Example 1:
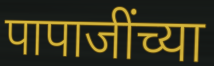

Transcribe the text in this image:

पापाजींच्या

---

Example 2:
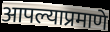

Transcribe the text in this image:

आपल्याप्रमाणे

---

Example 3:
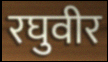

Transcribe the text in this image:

रघुवीर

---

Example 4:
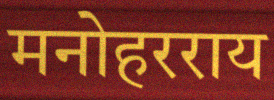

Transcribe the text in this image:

मनोहरराय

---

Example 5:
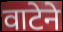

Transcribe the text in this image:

वाटेने